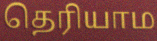
தெரியாம